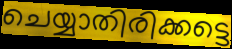
ചെയ്യാതിരിക്കട്ടെ